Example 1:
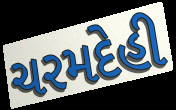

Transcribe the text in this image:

ચરમદેહી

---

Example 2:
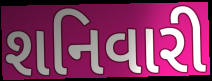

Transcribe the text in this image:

શનિવારી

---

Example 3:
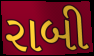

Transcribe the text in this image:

રાબી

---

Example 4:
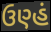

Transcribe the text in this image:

ઉણ્હં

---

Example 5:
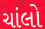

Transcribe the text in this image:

ચાંલો